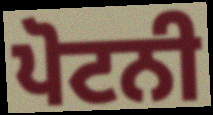
ਪੋਟਨੀ